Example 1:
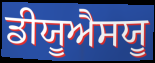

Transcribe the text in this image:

ਡੀਯੂਐਸਯੂ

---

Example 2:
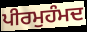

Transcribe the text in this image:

ਪੀਰਮੁਹੰਮਦ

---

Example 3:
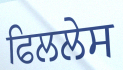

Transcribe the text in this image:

ਫਿਲਲੇਸ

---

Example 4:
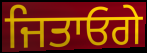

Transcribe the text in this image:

ਜਿਤਾਓਗੇ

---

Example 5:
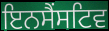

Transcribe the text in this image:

ਇਨਸੈਂਸਟਿਵ